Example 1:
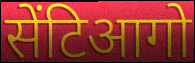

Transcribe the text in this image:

सेंटिआगो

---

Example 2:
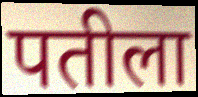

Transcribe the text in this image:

पतीला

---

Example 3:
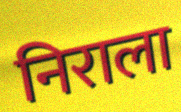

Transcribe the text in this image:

निराला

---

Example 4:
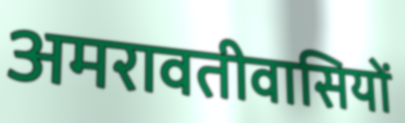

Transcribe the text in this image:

अमरावतीवासियों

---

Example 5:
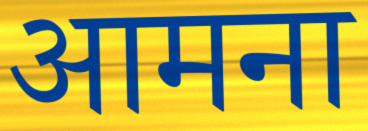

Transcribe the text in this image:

आमना